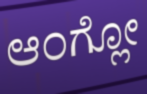
ಆಂಗ್ಲೋ